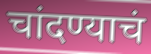
चांदण्याचं